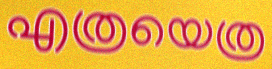
എത്രയെത്ര